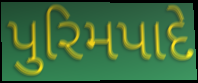
પુરિમપાદે